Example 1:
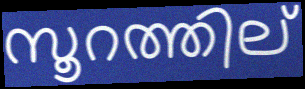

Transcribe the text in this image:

സൂറത്തില്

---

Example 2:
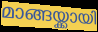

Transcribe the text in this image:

മാങ്ങയ്ക്കായി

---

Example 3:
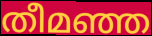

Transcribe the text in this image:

തീമഞ്ഞ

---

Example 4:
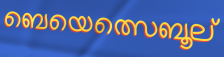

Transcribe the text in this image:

ബെയെത്സെബൂല്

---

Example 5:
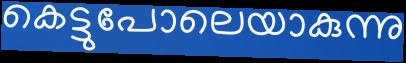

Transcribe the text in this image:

കെട്ടുപോലെയാകുന്നു